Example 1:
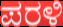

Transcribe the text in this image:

ಪರಳಿ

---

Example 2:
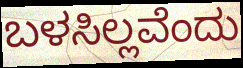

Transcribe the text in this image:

ಬಳಸಿಲ್ಲವೆಂದು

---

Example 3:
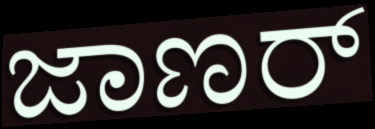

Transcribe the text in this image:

ಜಾಣರ್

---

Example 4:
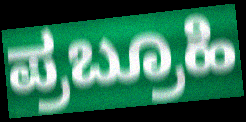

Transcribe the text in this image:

ಪ್ರಬ್ರೂಹಿ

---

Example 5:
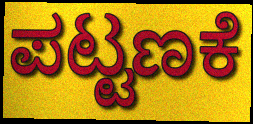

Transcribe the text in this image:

ಪಟ್ಟಣಕೆ